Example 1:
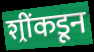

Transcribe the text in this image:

श्रींकडून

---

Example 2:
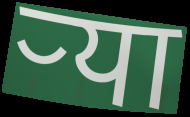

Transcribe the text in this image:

ऱ्या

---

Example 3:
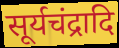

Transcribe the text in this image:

सूर्यचंद्रादि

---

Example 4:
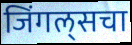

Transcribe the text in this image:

जिंगल्सचा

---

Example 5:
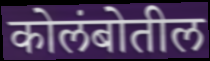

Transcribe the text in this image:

कोलंबोतील